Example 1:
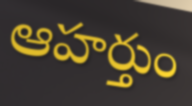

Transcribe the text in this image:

ఆహర్తుం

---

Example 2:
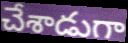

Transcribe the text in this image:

చేశాడుగా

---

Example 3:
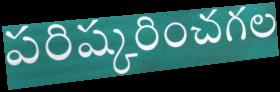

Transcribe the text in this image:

పరిష్కరించగల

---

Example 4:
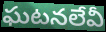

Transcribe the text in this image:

ఘటనలేవీ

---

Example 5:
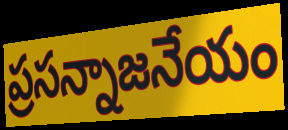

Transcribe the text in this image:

ప్రసన్నాజనేయం